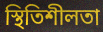
স্থিতিশীলতা